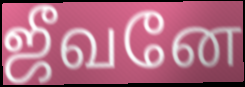
ஜீவனே